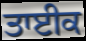
ਤਾਈਕ